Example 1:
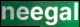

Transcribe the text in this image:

neegal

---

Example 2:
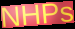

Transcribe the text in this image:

NHPs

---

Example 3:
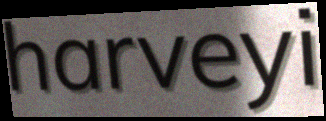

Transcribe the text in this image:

harveyi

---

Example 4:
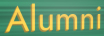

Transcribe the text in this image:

Alumni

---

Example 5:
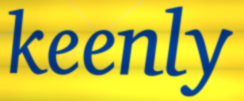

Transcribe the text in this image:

keenly